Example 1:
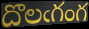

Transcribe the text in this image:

దొలఁగంగ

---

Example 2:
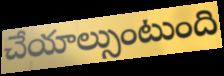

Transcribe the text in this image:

చేయాల్సుంటుంది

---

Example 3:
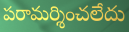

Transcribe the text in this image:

పరామర్శించలేదు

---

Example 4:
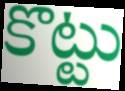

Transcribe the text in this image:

కొట్టు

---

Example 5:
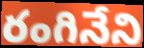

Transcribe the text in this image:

రంగినేని